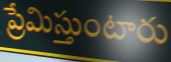
ప్రేమిస్తుంటారు